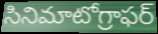
సినిమాటోగ్రాఫర్